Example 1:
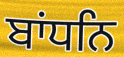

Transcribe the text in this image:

ਬਾਂਧਨਿ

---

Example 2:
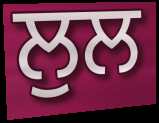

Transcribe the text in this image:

ਲੁਲ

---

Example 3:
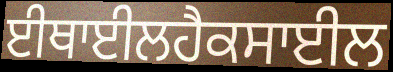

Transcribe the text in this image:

ਈਥਾਈਲਹੈਕਸਾਈਲ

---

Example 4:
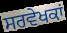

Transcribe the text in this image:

ਸਰਵੇਖਕਾਂ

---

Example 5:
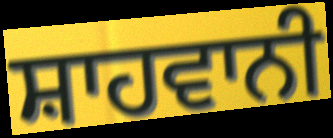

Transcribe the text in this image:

ਸ਼ਾਹਵਾਨੀ